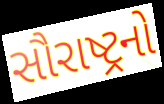
સૌરાષ્ટ્રનો